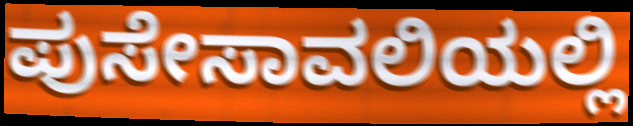
ಪುಸೇಸಾವಲಿಯಲ್ಲಿ